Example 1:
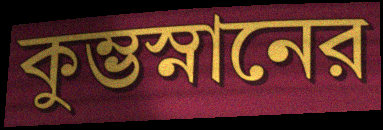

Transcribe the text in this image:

কুম্ভস্নানের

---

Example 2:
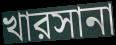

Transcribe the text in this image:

খারসানা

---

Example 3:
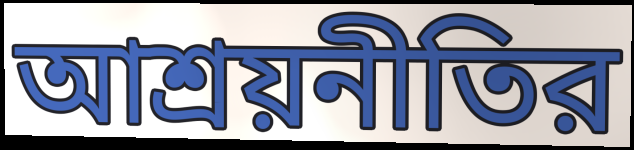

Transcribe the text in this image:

আশ্রয়নীতির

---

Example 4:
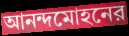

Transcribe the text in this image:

আনন্দমোহনের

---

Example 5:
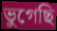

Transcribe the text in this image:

ভুগেছি